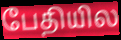
பேதியில